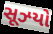
સૂઝ્યો